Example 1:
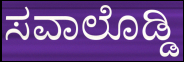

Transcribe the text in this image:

ಸವಾಲೊಡ್ಡಿ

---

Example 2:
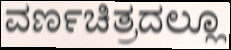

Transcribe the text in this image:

ವರ್ಣಚಿತ್ರದಲ್ಲೂ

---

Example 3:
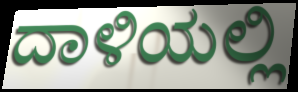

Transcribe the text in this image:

ದಾಳಿಯಲ್ಲಿ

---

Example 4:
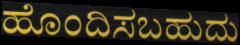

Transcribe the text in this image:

ಹೊಂದಿಸಬಹುದು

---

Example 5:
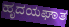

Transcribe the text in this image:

ಹೃದಯಘಾತ